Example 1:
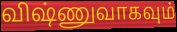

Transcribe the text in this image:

விஷ்ணுவாகவும்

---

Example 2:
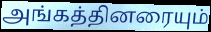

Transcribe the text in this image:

அங்கத்தினரையும்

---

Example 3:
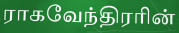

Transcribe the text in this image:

ராகவேந்திரரின்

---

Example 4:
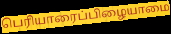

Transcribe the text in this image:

பெரியாரைப்பிழையாமை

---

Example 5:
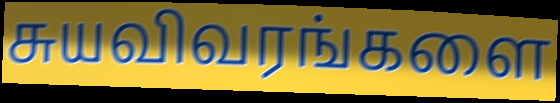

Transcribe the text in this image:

சுயவிவரங்களை